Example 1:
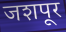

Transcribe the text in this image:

जशपूर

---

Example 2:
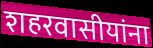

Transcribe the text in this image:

शहरवासीयांना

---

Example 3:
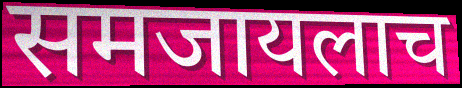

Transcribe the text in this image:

समजायलाच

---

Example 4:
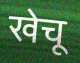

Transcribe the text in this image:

खेचू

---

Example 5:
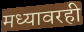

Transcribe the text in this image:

मध्यावरही